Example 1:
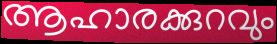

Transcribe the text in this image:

ആഹാരക്കുറവും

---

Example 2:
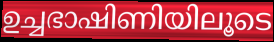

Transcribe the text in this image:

ഉച്ചഭാഷിണിയിലൂടെ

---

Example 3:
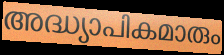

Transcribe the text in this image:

അദ്ധ്യാപികമാരും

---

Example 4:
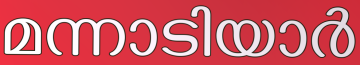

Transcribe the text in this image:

മന്നാടിയാർ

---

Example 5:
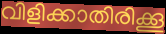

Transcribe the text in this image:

വിളിക്കാതിരിക്കൂ